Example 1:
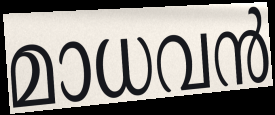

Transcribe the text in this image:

മാധവൻ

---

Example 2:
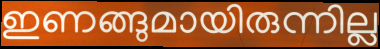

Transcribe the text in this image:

ഇണങ്ങുമായിരുന്നില്ല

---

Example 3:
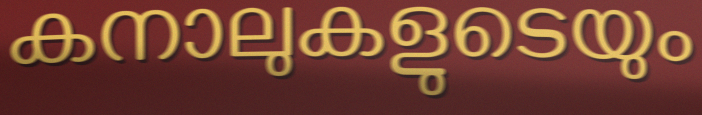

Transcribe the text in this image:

കനാലുകളുടെയും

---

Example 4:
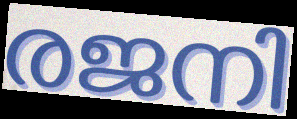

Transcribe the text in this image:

രജനി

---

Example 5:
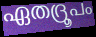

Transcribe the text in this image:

ഏതദ്രൂപം